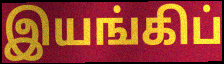
இயங்கிப்